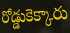
రోడ్డుకెక్కారు